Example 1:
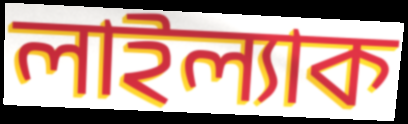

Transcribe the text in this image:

লাইল্যাক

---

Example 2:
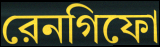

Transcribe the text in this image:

রেনগিফো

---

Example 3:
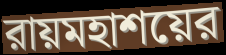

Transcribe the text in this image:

রায়মহাশয়ের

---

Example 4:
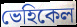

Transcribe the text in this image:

ভেহিকেল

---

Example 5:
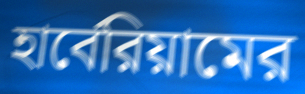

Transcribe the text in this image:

হার্বেরিয়ামের